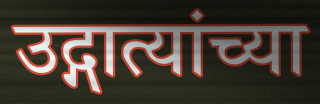
उद्गात्यांच्या